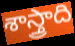
శాస్త్రాది